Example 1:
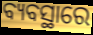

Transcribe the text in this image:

ବ୍ୟବସ୍ଥାରେ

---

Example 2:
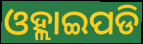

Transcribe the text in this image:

ଓହ୍ଲାଇପଡି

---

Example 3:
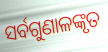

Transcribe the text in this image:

ସର୍ବଗୁଣାଳଙ୍କୃତ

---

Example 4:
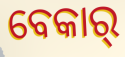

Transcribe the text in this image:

ବେକାର୍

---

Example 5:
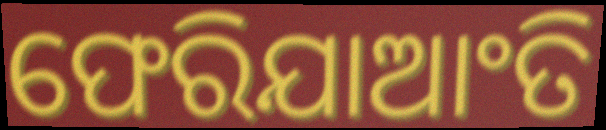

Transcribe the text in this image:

ଫେରିଯାଆଂତି